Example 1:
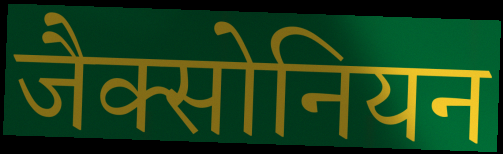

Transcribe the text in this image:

जैक्सोनियन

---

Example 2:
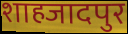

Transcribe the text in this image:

शाहजादपुर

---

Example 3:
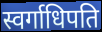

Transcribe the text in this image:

स्वर्गाधिपति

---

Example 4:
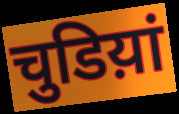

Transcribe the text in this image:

चुडिय़ां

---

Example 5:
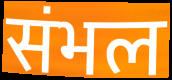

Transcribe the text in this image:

संभल